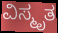
ವಿಸ್ಮೃತ